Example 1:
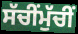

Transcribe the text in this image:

ਸੱਚੀਂਮੁੱਚੀਂ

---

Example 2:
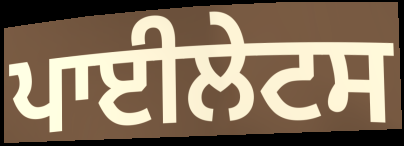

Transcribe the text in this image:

ਪਾਈਲੇਟਸ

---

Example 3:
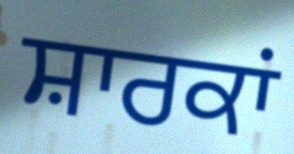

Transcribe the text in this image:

ਸ਼ਾਰਕਾਂ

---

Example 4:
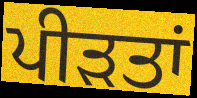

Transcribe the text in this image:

ਪੀੜਤਾਂ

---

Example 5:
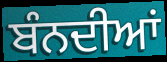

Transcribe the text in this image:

ਬੰਨਦੀਆਂ